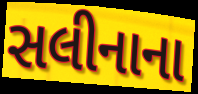
સલીનાના